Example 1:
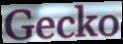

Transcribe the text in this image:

Gecko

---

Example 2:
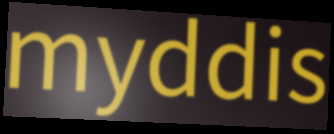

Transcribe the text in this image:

myddis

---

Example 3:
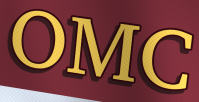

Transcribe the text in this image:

OMC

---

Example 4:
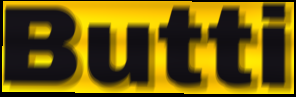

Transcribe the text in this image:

Butti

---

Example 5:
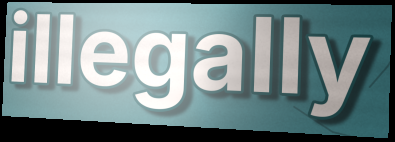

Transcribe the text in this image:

illegally